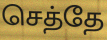
செத்தே